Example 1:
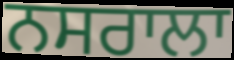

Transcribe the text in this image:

ਨਸਰਾਲਾ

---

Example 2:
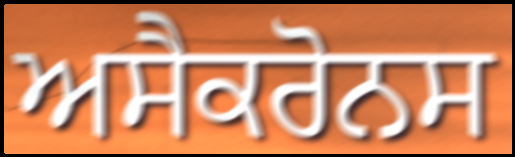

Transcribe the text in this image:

ਅਸੈਕਰੋਨਸ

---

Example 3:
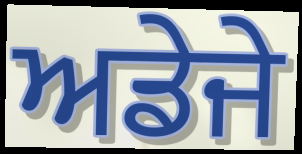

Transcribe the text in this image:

ਅਡੇਜੇ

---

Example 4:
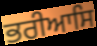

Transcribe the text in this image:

ਭਰੀਆਸਿ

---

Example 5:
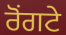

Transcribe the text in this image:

ਰੋੰਗਟੇ